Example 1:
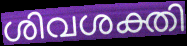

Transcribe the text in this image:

ശിവശക്തി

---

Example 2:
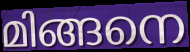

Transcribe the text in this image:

മിങ്ങനെ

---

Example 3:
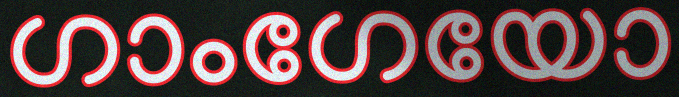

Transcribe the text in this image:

ഗാംഗേയോ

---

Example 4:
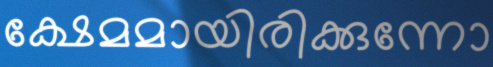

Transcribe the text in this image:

ക്ഷേമമായിരിക്കുന്നോ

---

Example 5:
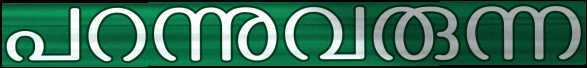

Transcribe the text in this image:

പറന്നുവരുന്ന